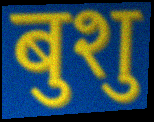
बुशु